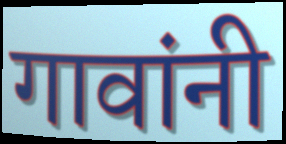
गावांनी